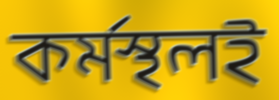
কর্মস্থলই